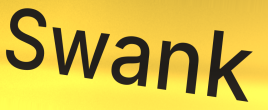
Swank